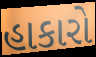
હાકારો